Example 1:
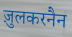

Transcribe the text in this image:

ज़ुलकरनैन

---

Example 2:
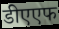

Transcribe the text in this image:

डीएएफ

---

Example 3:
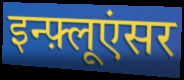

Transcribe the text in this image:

इन्फ़्लूएंसर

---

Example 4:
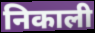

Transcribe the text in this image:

निकाली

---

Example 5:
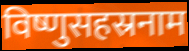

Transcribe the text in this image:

विष्णुसहस्रनाम